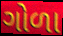
ગોળા